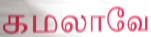
கமலாவே